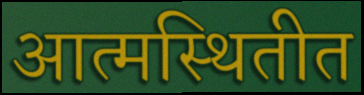
आत्मस्थितीत